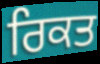
ਰਿਕਤ